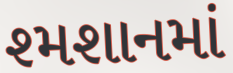
શ્મશાનમાં